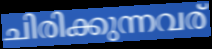
ചിരിക്കുന്നവര്